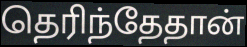
தெரிந்தேதான்